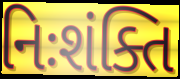
નિઃશંક્તિ